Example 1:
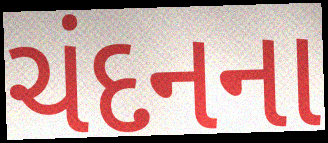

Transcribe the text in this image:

ચંદનના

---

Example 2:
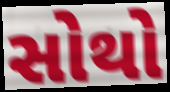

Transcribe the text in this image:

સોથો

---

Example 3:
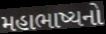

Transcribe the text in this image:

મહાભાષ્યનો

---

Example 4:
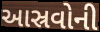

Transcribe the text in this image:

આસ્રવોની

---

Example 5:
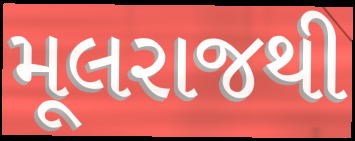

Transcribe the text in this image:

મૂલરાજથી